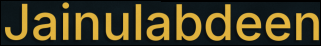
Jainulabdeen